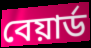
বেয়ার্ড